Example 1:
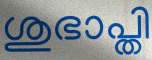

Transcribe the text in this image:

ശുഭാപ്തി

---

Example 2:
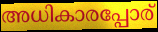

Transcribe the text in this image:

അധികാരപ്പോര്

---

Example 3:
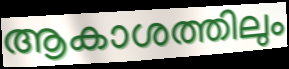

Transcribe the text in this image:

ആകാശത്തിലും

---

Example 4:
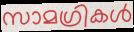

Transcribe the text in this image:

സാമഗ്രികൾ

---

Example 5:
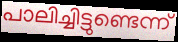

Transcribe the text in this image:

പാലിച്ചിട്ടുണ്ടെന്ന്